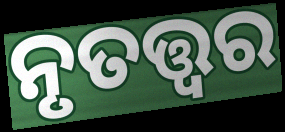
ନୃତତ୍ତ୍ୱର